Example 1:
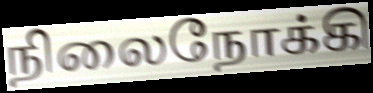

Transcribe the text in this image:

நிலைநோக்கி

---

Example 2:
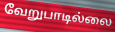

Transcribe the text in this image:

வேறுபாடில்லை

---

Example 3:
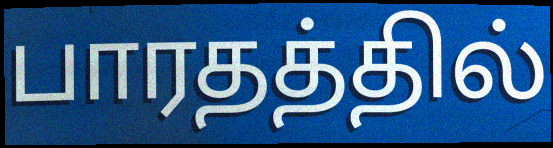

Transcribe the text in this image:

பாரதத்தில்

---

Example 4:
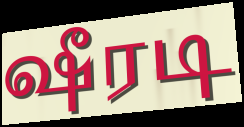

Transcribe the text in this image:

ஷீரடி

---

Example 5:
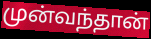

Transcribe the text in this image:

முன்வந்தான்